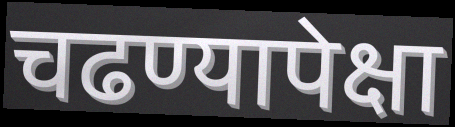
चढण्यापेक्षा